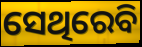
ସେଥିରେବି